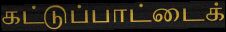
கட்டுப்பாட்டைக்